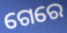
ଗେରେ